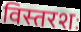
विस्तरशः